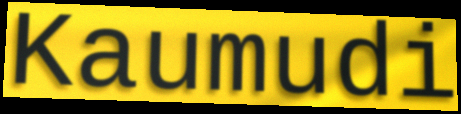
Kaumudi